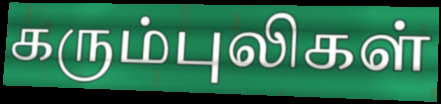
கரும்புலிகள்